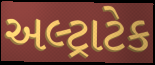
અલ્ટ્રાટેક